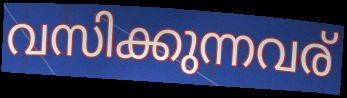
വസിക്കുന്നവര്